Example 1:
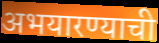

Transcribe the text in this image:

अभयारण्याची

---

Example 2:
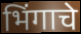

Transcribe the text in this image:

भिंगाचे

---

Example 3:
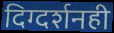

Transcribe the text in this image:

दिग्दर्शनही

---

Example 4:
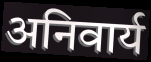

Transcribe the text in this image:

अनिवार्य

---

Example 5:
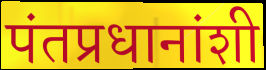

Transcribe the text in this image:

पंतप्रधानांशी